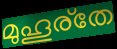
മുഹൂര്തേ